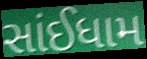
સાંઈધામ